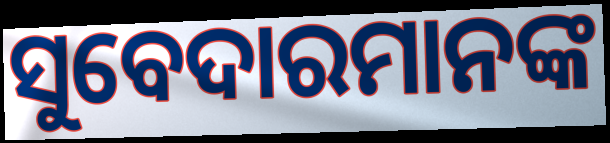
ସୁବେଦାରମାନଙ୍କ